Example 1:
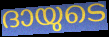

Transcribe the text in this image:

ദായുടെ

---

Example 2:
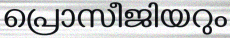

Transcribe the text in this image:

പ്രൊസീജിയറും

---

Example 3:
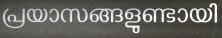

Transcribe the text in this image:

പ്രയാസങ്ങളുണ്ടായി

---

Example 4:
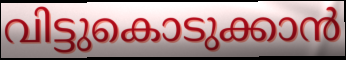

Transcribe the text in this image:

വിട്ടുകൊടുക്കാൻ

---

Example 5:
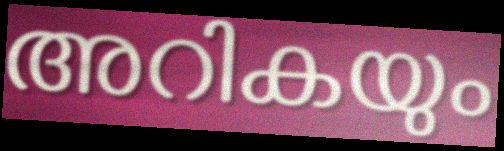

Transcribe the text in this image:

അറികയും